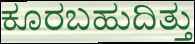
ಕೂರಬಹುದಿತ್ತು